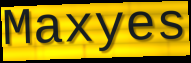
Maxyes